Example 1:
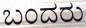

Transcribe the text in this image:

ಬಂದರು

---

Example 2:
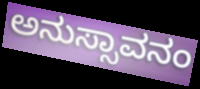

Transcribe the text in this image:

ಅನುಸ್ಸಾವನಂ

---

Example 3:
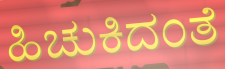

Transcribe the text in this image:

ಹಿಚುಕಿದಂತೆ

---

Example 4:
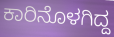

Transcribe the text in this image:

ಕಾರಿನೊಳಗಿದ್ದ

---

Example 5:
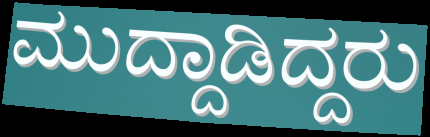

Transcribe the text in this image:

ಮುದ್ದಾಡಿದ್ದರು